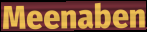
Meenaben